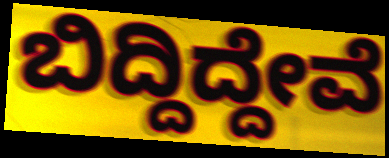
ಬಿದ್ದಿದ್ದೇವೆ